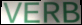
VERB